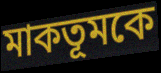
মাকতূমকে